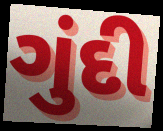
ગુંદી